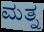
ಮತ್ನ